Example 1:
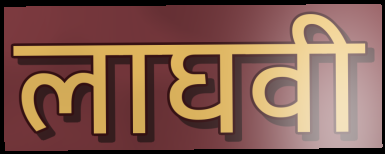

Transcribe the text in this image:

लाघवी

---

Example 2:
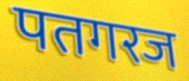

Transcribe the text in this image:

पतगरज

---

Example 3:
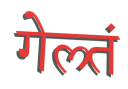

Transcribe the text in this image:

गेल्तं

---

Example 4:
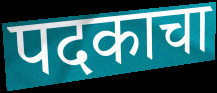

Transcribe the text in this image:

पदकाचा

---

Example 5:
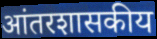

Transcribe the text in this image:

आंतरशासकीय